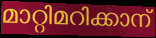
മാറ്റിമറിക്കാന്